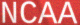
NCAA